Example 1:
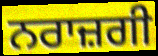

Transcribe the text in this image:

ਨਰਾਜ਼ਗੀ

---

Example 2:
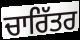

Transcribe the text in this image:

ਚਾਰਿੱਤਰ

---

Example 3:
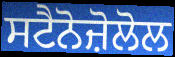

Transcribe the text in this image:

ਸਟੈਨੋਜ਼ੋਲੋਲ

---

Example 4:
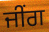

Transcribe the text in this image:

ਜੀਂਗ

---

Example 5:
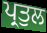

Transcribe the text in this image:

ਪ੍ਰਤੁਲ